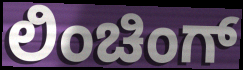
ಲಿಂಚಿಂಗ್